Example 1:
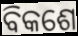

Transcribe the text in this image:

ବିକଶେ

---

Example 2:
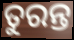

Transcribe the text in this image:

ତୁରନ୍ତ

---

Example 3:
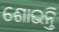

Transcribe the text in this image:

ଶୋଭନ୍ତି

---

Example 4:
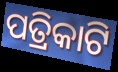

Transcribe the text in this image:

ପତ୍ରିକାଟି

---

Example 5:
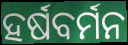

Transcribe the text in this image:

ହର୍ଷବର୍ମନ